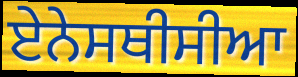
ਏਨੇਸਥੀਸੀਆ